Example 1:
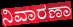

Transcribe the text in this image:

ನಿವಾರಣಾ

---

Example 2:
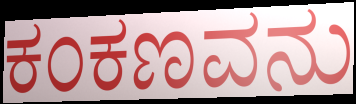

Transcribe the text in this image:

ಕಂಕಣವನು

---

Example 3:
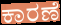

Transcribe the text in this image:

ಕಾರಣೆ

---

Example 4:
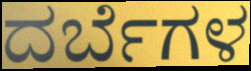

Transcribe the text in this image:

ದರ್ಬೆಗಳ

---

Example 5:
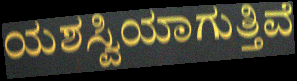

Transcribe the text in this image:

ಯಶಸ್ವಿಯಾಗುತ್ತಿವೆ